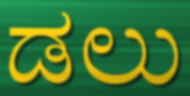
ಡಲು